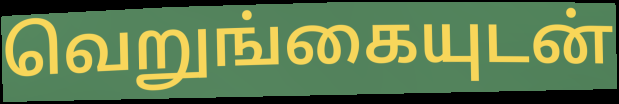
வெறுங்கையுடன்